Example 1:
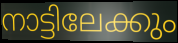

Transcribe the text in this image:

നാട്ടിലേക്കും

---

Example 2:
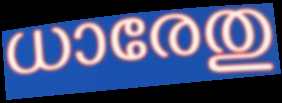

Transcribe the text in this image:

ധാരേതു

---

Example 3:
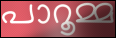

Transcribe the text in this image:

പാറൂമ്മ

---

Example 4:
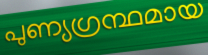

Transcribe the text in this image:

പുണ്യഗ്രന്ഥമായ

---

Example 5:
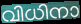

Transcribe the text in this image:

വിധിനാ